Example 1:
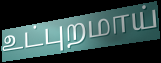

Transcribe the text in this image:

உட்புறமாய்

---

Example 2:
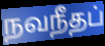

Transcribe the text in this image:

நவநீதப்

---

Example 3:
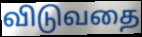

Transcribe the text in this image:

விடுவதை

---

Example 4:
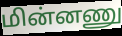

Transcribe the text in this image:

மின்னணு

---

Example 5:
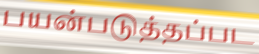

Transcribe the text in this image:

பயன்படுத்தப்பட